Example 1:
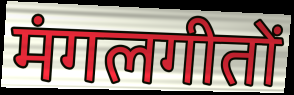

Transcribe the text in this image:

मंगलगीतों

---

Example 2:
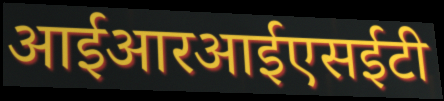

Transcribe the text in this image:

आईआरआईएसईटी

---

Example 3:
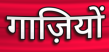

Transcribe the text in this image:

गाज़ियों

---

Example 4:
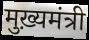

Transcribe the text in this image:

मुख़्यमंत्री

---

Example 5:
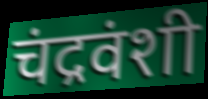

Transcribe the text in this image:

चंद्रवंशी